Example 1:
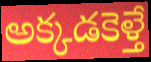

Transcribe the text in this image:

అక్కడకెళ్తే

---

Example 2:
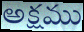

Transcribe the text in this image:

అక్షము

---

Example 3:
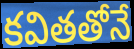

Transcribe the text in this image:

కవితతోనే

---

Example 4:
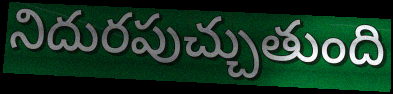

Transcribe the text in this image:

నిదురపుచ్చుతుంది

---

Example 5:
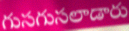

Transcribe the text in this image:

గుసగుసలాడారు